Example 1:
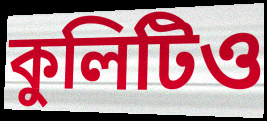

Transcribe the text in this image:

কুলিটিও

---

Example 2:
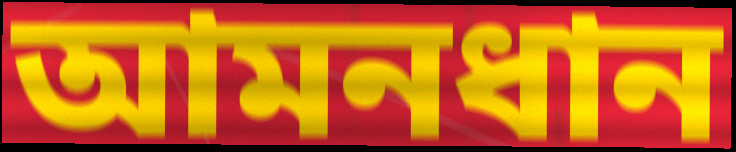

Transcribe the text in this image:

আমনধান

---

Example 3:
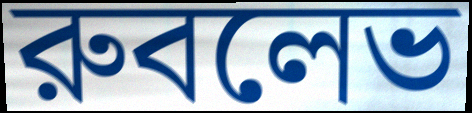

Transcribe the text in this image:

রুবলেভ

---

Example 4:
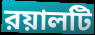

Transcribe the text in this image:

রয়ালটি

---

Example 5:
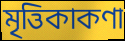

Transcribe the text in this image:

মৃত্তিকাকণা